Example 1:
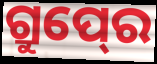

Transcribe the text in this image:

ଗ୍ରୁପ୍‍ରେ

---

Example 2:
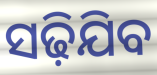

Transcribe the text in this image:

ସଢ଼ିଯିବ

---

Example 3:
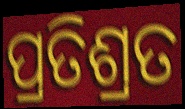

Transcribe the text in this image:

ପ୍ରତିଶ୍ରତ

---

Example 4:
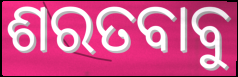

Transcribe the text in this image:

ଶରତବାବୁ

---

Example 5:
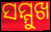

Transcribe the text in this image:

ସମ୍ମୁଖ